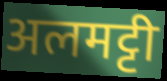
अलमट्टी